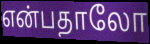
என்பதாலோ